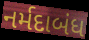
નર્મદાબંધ